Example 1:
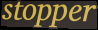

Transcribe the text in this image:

stopper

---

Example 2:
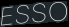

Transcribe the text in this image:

ESSO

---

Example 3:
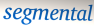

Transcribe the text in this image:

segmental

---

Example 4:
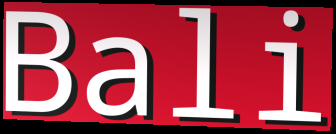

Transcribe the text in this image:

Bali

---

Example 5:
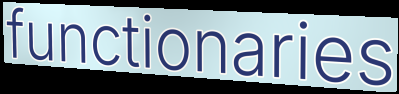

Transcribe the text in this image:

functionaries